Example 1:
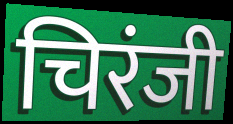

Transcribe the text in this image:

चिरंजी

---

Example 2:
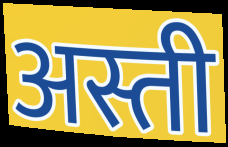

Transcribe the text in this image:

अस्ती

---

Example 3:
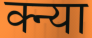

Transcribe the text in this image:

क्न्या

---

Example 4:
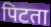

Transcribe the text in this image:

पिटता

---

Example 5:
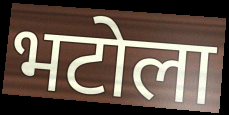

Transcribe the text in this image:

भटोला